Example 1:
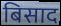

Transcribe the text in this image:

बिसाद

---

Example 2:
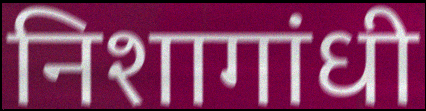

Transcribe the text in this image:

निशागांधी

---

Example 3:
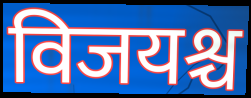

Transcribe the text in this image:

विजयश्च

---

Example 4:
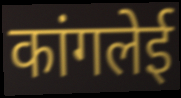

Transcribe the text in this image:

कांगलेई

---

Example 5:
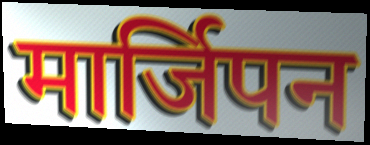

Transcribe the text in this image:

मार्जिपन